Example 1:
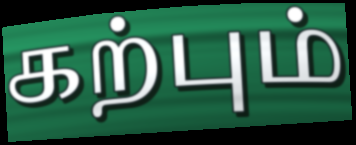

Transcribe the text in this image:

கற்பும்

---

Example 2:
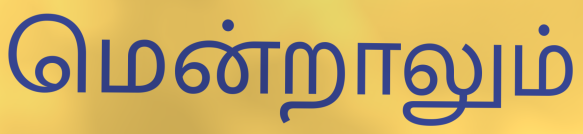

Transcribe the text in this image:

மென்றாலும்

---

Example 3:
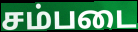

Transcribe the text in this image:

சம்படை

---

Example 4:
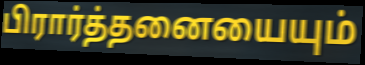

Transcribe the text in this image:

பிரார்த்தனையையும்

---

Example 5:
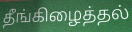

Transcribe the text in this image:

தீங்கிழைத்தல்